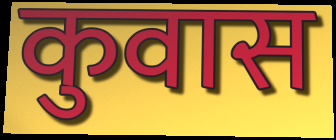
कुवास